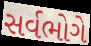
સર્વભોગે